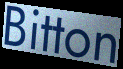
Bitton